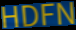
HDFN